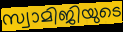
സ്വാമിജിയുടെ